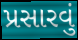
પ્રસારવું